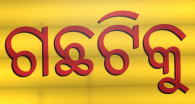
ଗଛଟିକୁ